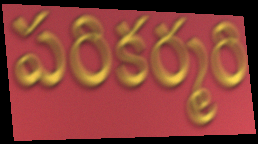
పరికర్మరి